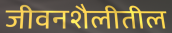
जीवनशैलीतील